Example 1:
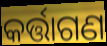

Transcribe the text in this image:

କର୍ତ୍ତାଗଣ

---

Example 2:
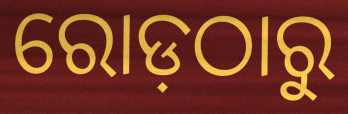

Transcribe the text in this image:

ରୋଡ଼ଠାରୁ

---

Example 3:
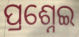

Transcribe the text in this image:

ପ୍ରଶ୍ନେଇ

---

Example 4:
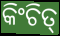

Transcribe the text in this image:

କିଂଚିତ୍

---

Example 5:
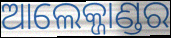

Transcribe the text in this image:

ଆଲେକ୍ଜାଣ୍ଡର